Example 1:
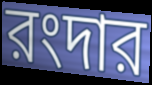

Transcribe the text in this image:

রংদার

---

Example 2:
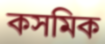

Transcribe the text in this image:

কসমিক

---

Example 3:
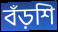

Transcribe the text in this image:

বঁড়শি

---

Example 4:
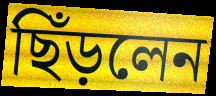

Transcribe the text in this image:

ছিঁড়লেন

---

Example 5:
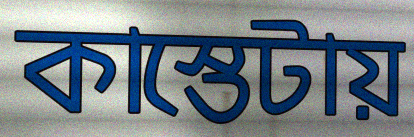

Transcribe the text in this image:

কাস্তেটায়